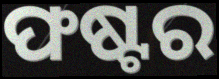
ଫଷ୍ଟର